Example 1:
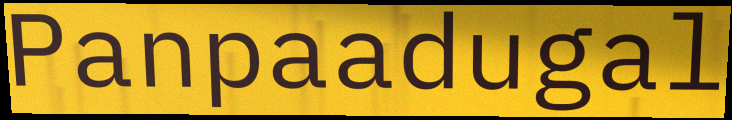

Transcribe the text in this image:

Panpaadugal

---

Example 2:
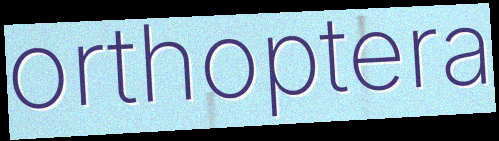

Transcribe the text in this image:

orthoptera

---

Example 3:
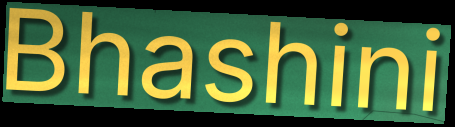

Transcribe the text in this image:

Bhashini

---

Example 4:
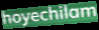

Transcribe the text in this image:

hoyechilam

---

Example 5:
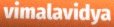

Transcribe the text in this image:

vimalavidya